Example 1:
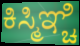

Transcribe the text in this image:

ಕಿಸ್ಮಿಞ್ಚಿ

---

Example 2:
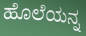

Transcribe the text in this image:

ಹೊಲೆಯನ್ನ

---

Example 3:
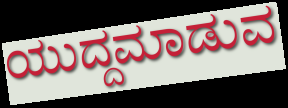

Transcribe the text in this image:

ಯುದ್ದಮಾಡುವ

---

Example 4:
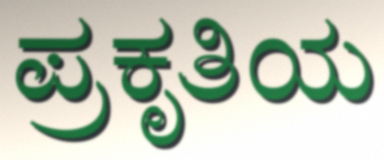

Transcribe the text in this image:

ಪ್ರಕೃತಿಯ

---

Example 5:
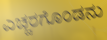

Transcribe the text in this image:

ಎಚ್ಚರಗೊಂಡನು